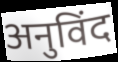
अनुविंद